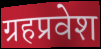
ग्रहप्रवेश